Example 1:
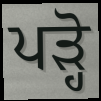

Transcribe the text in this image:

ਪੜ੍ਹੋ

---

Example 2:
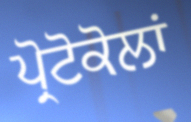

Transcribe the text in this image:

ਪ੍ਰੋਟੋਕੋਲਾਂ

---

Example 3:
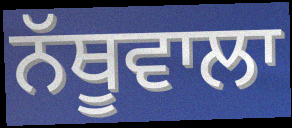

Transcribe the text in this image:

ਨੱਥੂਵਾਲਾ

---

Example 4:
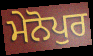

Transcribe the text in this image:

ਮੇਨੋਪੁਰ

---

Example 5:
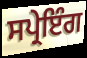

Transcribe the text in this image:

ਸਪ੍ਰੇਇੰਗ